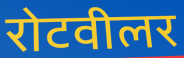
रोटवीलर